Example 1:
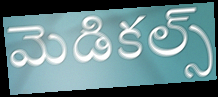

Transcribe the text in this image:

మెడికల్స్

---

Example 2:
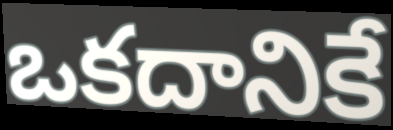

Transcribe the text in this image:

ఒకదానికే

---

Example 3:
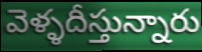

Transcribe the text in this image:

వెళ్ళదీస్తున్నారు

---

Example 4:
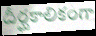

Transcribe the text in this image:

దీర్ఘకాలికంగా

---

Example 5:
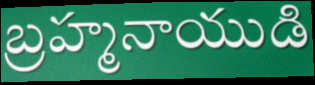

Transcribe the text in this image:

బ్రహ్మనాయుడి